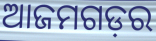
ଆଜମଗଡ଼ର